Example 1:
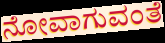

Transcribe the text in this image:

ನೋವಾಗುವಂತೆ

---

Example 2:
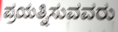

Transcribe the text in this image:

ಪ್ರಯತ್ನಿಸುವವರು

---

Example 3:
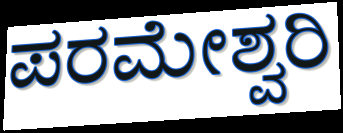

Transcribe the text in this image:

ಪರಮೇಶ್ವರಿ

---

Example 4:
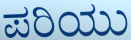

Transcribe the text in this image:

ಪರಿಯು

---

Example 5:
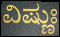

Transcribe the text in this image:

ವಿಷ್ಣುಃ